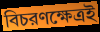
বিচরণক্ষেত্রই